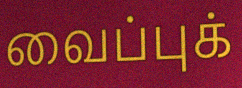
வைப்புக்